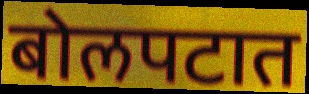
बोलपटात